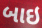
બાઇ